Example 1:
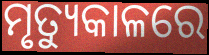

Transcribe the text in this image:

ମୃତ୍ୟୁକାଳରେ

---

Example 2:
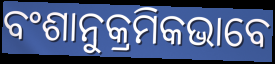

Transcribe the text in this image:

ବଂଶାନୁକ୍ରମିକଭାବେ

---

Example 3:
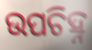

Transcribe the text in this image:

ଉପଚିହ୍ନ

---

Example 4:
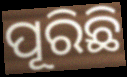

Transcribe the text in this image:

ପୂରିଛି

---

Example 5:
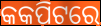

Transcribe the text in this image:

କକପିଟରେ